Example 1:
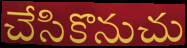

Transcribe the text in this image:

చేసికొనుచు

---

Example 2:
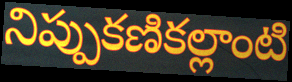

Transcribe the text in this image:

నిప్పుకణికల్లాంటి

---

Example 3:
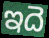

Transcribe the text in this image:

ఇదె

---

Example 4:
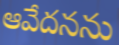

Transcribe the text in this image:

ఆవేదనను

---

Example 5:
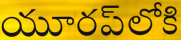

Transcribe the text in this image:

యూరప్‌లోకి